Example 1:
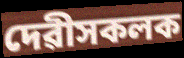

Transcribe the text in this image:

দেৱীসকলক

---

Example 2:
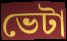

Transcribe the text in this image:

ভেটা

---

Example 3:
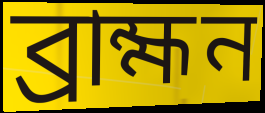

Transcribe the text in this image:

ব্ৰাহ্মন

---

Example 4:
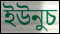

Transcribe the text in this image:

ইউনুচ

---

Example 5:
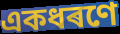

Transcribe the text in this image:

একধৰণে